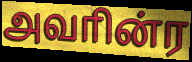
அவரின்ர